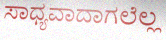
ಸಾಧ್ಯವಾದಾಗಲೆಲ್ಲ